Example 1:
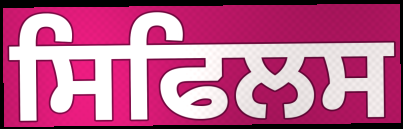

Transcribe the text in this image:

ਸਿਫਿਲਸ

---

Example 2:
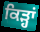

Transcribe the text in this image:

ਕਿੜ੍ਹਾਂ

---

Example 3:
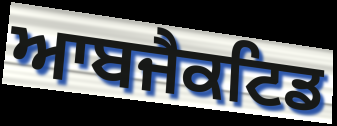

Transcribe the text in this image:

ਆਬਜੈਕਟਿਡ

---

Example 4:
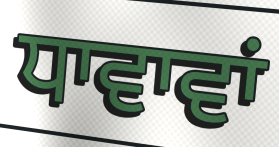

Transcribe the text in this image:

ਧਾਵਾਵਾਂ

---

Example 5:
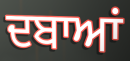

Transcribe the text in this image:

ਦਬਾਆਂ